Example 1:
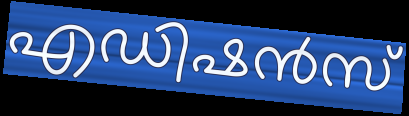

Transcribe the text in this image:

എഡിഷൻസ്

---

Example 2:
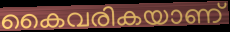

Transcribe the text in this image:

കൈവരികയാണ്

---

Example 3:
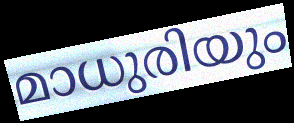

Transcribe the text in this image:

മാധുരിയും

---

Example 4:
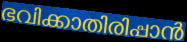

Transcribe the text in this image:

ഭവിക്കാതിരിപ്പാൻ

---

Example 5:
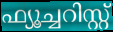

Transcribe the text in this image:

ഫ്യൂച്ചറിസ്റ്റ്